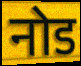
नोड